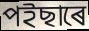
পইছাৰে